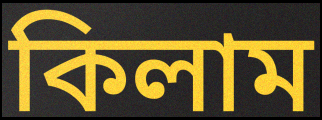
কিলাম